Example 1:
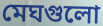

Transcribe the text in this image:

মেঘগুলো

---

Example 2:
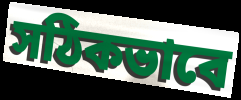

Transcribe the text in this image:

সঠিকভাবে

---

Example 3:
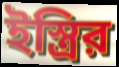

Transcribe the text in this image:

ইস্ত্রির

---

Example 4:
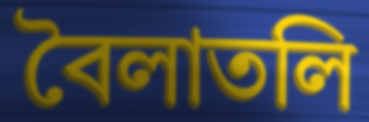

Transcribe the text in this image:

বৈলাতলি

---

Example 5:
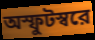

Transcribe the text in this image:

অস্ফুটস্বরে